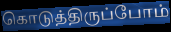
கொடுத்திருப்போம்